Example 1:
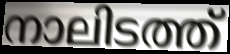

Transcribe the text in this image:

നാലിടത്ത്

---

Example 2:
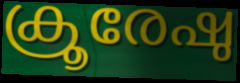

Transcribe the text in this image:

ക്രൂരേഷു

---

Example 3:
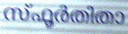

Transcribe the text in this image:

സ്ഫൂർതിതാ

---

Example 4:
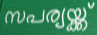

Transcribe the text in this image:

സപര്യയ്ക്ക്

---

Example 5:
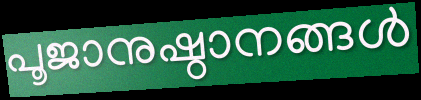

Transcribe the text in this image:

പൂജാനുഷ്ഠാനങ്ങൾ